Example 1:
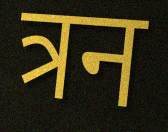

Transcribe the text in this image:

त्रन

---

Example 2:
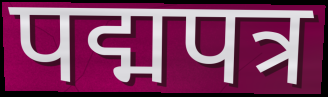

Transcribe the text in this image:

पद्मपत्र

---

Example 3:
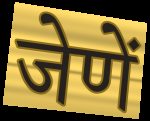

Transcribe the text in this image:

जेणें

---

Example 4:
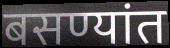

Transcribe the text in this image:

बसण्यांत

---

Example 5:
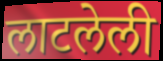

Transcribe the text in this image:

लाटलेली